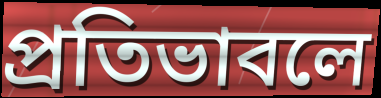
প্রতিভাবলে